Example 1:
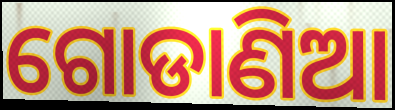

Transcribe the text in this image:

ଗୋଡାଣିଆ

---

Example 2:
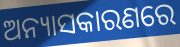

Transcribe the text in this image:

ଅନ୍ୟାସକାରଣରେ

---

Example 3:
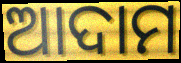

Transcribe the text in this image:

ଆଦାମ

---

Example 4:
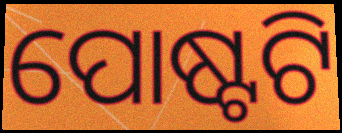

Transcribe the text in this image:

ପୋଷ୍ଟଟି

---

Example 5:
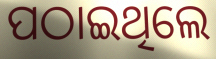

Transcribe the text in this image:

ପଠାଇଥିଲେ